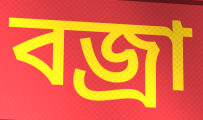
বজ্রা